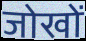
जोखों